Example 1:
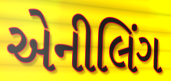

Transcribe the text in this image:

એનીલિંગ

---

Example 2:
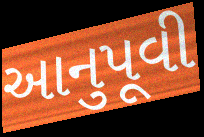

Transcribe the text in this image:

આનુપૂવી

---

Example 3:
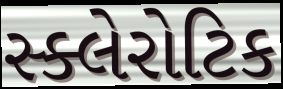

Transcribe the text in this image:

સ્ક્લેરોટિક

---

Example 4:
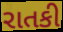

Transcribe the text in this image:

રાતકી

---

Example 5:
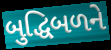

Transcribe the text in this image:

બુદ્ધિબળને